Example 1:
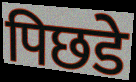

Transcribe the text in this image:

पिछडे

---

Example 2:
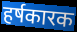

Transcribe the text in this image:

हर्षकारक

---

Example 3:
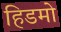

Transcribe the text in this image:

हिडमो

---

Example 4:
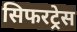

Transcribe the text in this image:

सिफरट्रेस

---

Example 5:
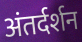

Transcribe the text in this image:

अंतर्दर्शन